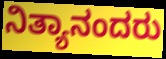
ನಿತ್ಯಾನಂದರು